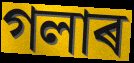
গলাৰ